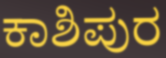
ಕಾಶಿಪುರ